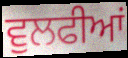
ਵੁਲਫੀਆਂ